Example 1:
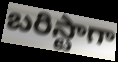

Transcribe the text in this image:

బరిస్టాగా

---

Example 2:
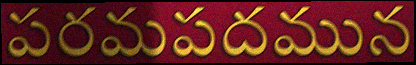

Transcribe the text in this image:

పరమపదమున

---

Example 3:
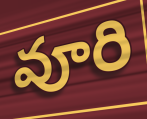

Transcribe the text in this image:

వూరి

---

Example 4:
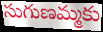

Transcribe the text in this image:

సుగుణమ్మకు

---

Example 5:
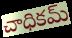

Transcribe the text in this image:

చాధికమ్